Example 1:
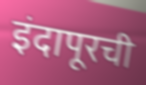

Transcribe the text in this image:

इंदापूरची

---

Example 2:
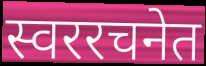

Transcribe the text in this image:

स्वररचनेत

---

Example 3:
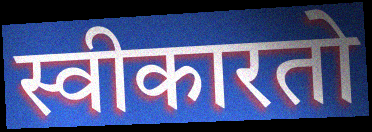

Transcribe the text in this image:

स्वीकारतो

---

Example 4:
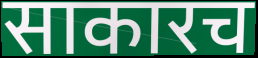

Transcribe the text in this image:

साकारच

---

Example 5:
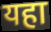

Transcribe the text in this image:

यहा